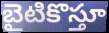
బైటికొస్తూ